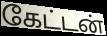
கேட்டன்